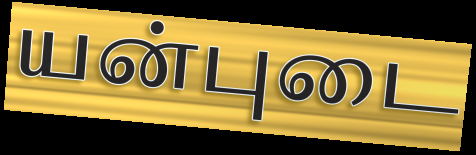
யன்புடை